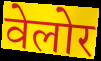
वेलोर